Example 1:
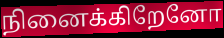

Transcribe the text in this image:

நினைக்கிறேனோ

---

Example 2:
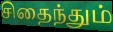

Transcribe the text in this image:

சிதைந்தும்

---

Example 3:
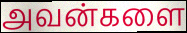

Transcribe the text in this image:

அவன்களை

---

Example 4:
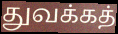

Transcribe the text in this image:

துவக்கத்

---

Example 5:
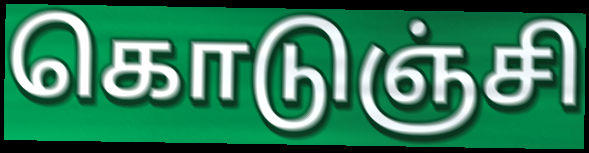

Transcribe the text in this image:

கொடுஞ்சி